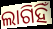
ଲାଗିହିଁ